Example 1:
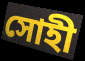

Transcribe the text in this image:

সোহী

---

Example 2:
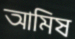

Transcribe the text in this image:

আমিষ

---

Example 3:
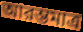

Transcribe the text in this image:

আরম্ভমাত্র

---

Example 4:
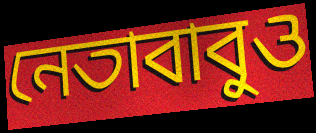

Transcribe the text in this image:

নেতাবাবুও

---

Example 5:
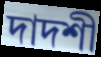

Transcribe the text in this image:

দাদশী